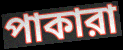
পাকারা